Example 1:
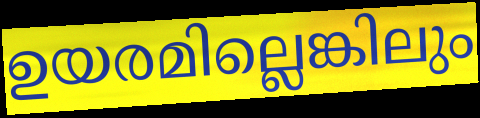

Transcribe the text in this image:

ഉയരമില്ലെങ്കിലും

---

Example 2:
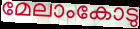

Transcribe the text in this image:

മേലാംകോടു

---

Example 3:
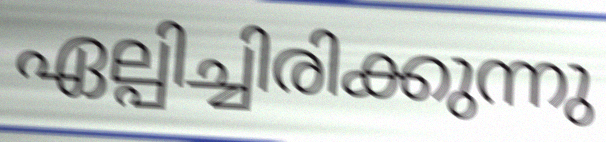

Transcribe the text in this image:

ഏല്പിച്ചിരിക്കുന്നു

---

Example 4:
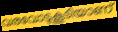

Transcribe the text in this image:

വരവോടുകൂടിയാണ്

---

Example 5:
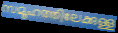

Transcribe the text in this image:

സമൂഹത്തിലേക്കുള്ള